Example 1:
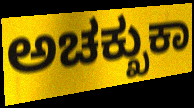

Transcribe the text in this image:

ಅಚಕ್ಖುಕಾ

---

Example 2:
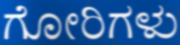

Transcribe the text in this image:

ಗೋರಿಗಳು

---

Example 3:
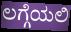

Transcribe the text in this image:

ಲಗ್ಗೆಯಲಿ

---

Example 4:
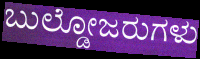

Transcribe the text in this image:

ಬುಲ್ಡೋಜರುಗಳು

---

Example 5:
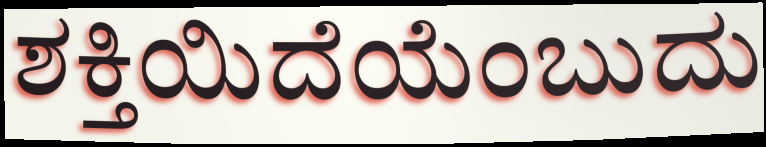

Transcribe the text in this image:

ಶಕ್ತಿಯಿದೆಯೆಂಬುದು